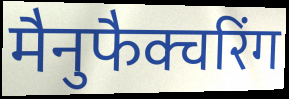
मैनुफैक्चरिंग